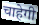
चाहेगी